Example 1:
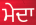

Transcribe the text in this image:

ਮੇਦਾ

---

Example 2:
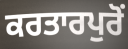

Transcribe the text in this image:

ਕਰਤਾਰਪੁਰੋਂ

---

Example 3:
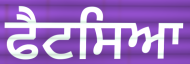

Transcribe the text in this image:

ਫੈਟਸਿਆ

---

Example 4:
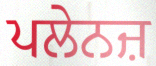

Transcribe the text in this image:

ਪਲੇਨਜ਼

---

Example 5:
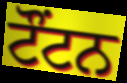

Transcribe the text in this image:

ਟੌਂਟਨ